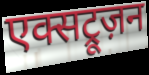
एक्सट्रूज़न